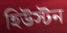
হিউস্টন